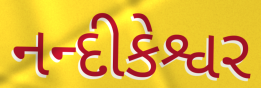
નન્દીકેશ્વર